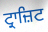
ਟ੍ਰਾਜ਼ਿਟ